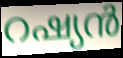
റഷ്യൻ